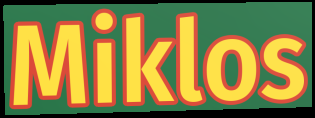
Miklos